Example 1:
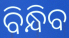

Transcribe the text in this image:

ବିନ୍ଧିବ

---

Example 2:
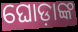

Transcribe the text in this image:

ଘୋଡ଼ାଙ୍କ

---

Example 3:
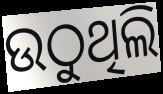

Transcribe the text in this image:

ଉଠୁଥିଲି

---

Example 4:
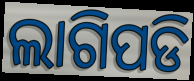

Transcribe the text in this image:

ଲାଗିପଡି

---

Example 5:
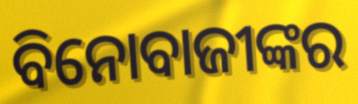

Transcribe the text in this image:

ବିନୋବାଜୀଙ୍କର